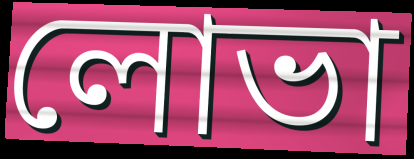
লোভা